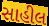
સાહીલ